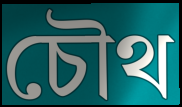
চৌথ